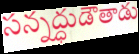
సన్నద్ధుడౌతాడు